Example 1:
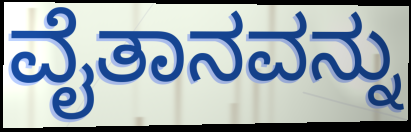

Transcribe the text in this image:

ವೈತಾನವನ್ನು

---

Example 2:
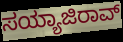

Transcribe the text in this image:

ಸಯ್ಯಾಜಿರಾವ್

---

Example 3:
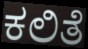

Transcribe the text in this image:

ಕಲಿತೆ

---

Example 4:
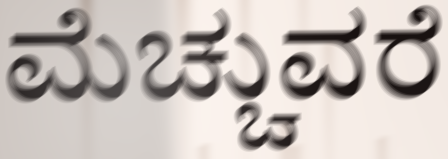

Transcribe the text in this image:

ಮೆಚ್ಚುವರೆ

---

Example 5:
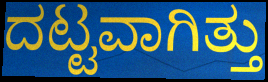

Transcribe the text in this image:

ದಟ್ಟವಾಗಿತ್ತು